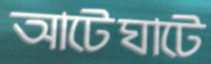
আটেঘাটে